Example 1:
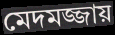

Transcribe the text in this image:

মেদমজ্জায়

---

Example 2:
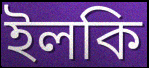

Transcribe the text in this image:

ইলকি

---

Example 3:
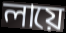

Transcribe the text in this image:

লায়ে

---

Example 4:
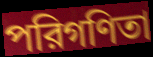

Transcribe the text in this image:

পরিগণিতা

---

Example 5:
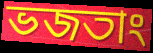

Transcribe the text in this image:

ভজতাং